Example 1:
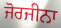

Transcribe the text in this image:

ਜੋਰਜੀਨਾ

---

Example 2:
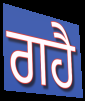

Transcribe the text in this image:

ਗਹੈ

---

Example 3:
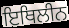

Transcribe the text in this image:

ਇਥਿਲੀਨ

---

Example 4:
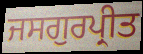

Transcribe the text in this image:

ਜਸਗੁਰਪ੍ਰੀਤ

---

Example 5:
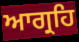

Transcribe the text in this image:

ਆਗ੍ਰਹਿ